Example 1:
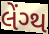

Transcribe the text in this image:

લેંગ્થ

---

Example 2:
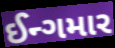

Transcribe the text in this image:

ઈન્ગમાર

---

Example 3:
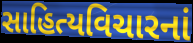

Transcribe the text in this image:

સાહિત્યવિચારનાં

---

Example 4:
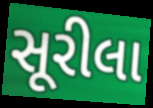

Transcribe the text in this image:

સૂરીલા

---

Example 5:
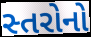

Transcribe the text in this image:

સ્તરોનો